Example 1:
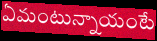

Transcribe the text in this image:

ఏమంటున్నాయంటే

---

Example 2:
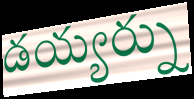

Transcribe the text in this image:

డయ్యర్ను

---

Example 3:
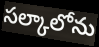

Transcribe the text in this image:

సల్కాలోను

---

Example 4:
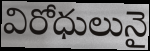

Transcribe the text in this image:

విరోధులునై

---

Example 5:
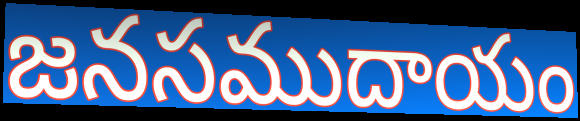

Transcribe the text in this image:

జనసముదాయం